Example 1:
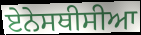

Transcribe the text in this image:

ਏਨੇਸਥੀਸੀਆ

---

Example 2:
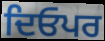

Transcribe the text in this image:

ਦਿਓਪਰ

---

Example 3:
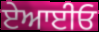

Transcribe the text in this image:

ਏਆਈਓ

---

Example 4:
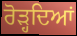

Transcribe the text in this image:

ਰੋੜ੍ਹਦਿਆਂ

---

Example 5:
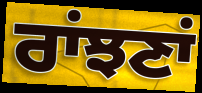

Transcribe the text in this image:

ਰਾਂਝਣਾਂ